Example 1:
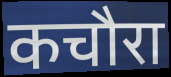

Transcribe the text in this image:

कचौरा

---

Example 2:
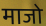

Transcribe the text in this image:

माजो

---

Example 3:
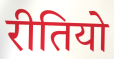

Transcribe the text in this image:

रीतियो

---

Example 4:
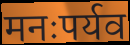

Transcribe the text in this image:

मनःपर्यव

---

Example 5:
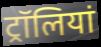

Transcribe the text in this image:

ट्रॉलियां